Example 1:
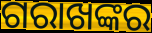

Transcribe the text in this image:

ଗରାଖଙ୍କର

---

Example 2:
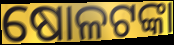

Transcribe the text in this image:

ଷୋଳଟଙ୍କା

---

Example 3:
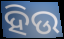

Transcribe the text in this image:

ହିଉ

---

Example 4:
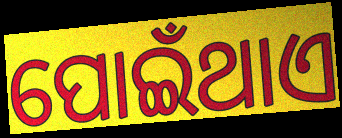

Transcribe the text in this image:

ପୋଇଁଥାଏ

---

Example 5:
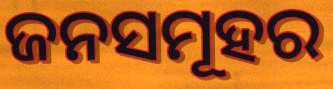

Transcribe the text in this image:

ଜନସମୂହର